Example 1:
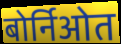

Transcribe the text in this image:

बोर्निओत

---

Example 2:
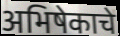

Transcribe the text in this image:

अभिषेकाचे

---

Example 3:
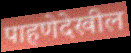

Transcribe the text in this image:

पाहणेदेखील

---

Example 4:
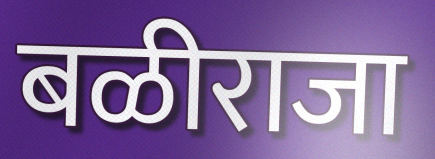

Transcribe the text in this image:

बळीराजा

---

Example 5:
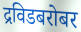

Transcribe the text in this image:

द्रविडबरोबर